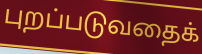
புறப்படுவதைக்